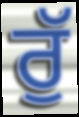
ਰੁੱ